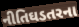
નીતિઘડતરના